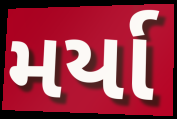
મર્યા